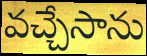
వచ్చేసాను